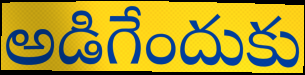
అడిగేందుకు